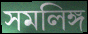
সমলিঙ্গ